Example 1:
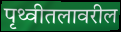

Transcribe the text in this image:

पृथ्वीतलावरील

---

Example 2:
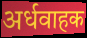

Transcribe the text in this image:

अर्धवाहक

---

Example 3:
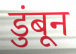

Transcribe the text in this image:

डुंबून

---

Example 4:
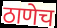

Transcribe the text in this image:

ठाणेच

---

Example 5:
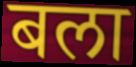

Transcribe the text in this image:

बला